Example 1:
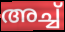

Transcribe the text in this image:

അച്ച്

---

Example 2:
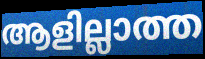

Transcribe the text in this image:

ആളില്ലാത്ത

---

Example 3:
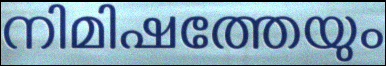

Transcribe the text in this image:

നിമിഷത്തേയും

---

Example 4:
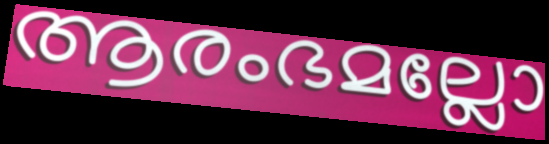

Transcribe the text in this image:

ആരംഭമല്ലോ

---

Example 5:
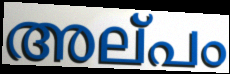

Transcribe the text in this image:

അല്‌പം